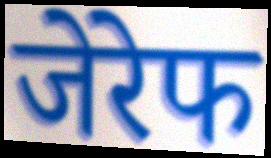
जेरेफ